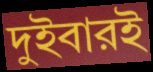
দুইবারই